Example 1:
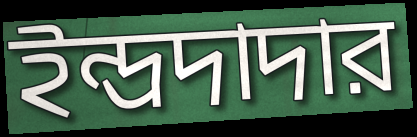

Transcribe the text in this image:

ইন্দ্রদাদার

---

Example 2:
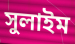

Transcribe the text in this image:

সুলাইম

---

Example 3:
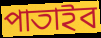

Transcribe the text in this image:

পাতাইব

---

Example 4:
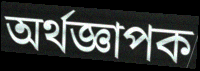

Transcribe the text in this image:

অর্থজ্ঞাপক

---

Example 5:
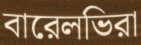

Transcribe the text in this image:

বারেলভিরা